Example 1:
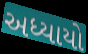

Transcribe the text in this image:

અધ્યાયો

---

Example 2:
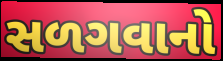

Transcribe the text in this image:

સળગવાનો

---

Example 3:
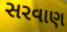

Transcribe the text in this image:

સરવાણ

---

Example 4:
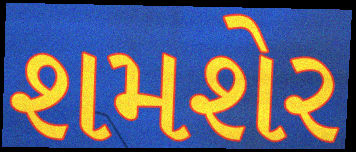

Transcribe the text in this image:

શમશેર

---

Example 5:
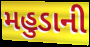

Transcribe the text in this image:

મહુડાની